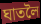
ঘাতলৈ